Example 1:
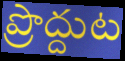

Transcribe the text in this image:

ప్రొద్దుట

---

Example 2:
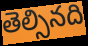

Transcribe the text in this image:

తెల్సినది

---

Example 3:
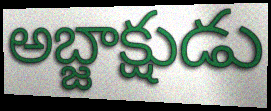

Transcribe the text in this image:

అబ్జాక్షుడు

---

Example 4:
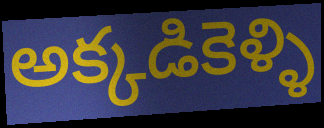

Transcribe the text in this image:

అక్కడికెళ్ళి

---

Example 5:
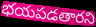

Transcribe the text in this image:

భయపడతారని